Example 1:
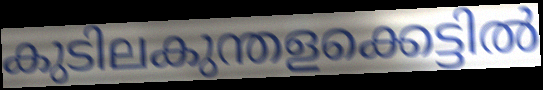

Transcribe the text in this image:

കുടിലകുന്തളക്കെട്ടിൽ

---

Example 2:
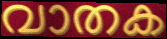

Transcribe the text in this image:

വാതക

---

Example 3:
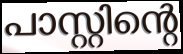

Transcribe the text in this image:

പാസ്റ്റിന്റെ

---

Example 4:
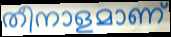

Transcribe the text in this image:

തീനാളമാണ്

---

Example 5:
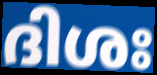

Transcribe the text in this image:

ദിശഃ